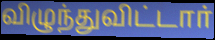
விழுந்துவிட்டார்